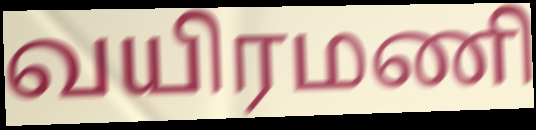
வயிரமணி